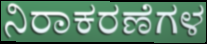
ನಿರಾಕರಣೆಗಳ